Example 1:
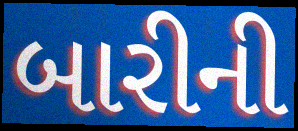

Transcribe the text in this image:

બારીની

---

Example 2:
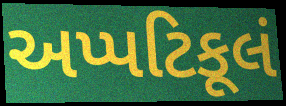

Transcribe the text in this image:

અપ્પટિકૂલં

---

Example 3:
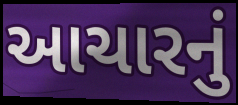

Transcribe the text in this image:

આચારનું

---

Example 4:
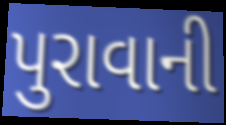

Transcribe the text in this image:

પુરાવાની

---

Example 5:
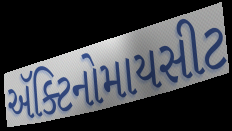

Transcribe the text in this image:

ઍક્ટિનોમાયસીટ